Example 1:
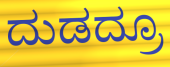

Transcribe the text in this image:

ದುಡದ್ರೂ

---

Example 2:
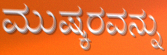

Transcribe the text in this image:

ಮುಷ್ಕರವನ್ನು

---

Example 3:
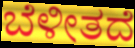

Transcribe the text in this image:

ಬೆಳೀತದೆ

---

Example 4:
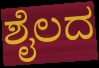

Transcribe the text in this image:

ಶೈಲದ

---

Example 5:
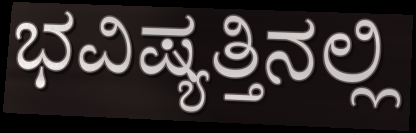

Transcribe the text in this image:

ಭವಿಷ್ಯತ್ತಿನಲ್ಲಿ